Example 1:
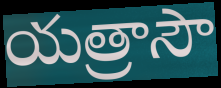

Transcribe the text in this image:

యత్రాసౌ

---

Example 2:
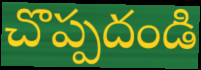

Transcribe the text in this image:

చొప్పదండి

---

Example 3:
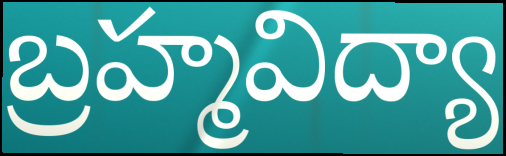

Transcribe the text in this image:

బ్రహ్మవిద్యా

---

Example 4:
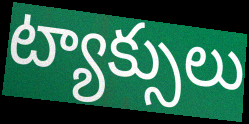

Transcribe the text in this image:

ట్యాక్సులు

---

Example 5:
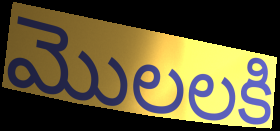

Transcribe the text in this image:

మొలలకి